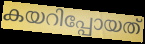
കയറിപ്പോയത്